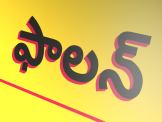
ఫాలన్